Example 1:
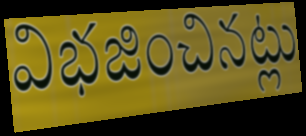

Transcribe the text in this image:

విభజించినట్లు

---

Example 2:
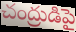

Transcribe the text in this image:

చంద్రుడిపై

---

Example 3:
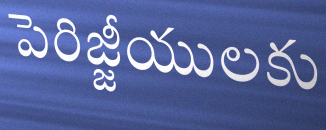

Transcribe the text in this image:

పెరిజ్జీయులకు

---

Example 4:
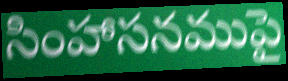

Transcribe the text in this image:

సింహాసనముపై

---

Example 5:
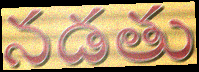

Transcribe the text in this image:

నడతు